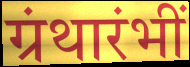
ग्रंथारंभीं